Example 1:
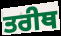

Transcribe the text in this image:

ਤਰੀਥ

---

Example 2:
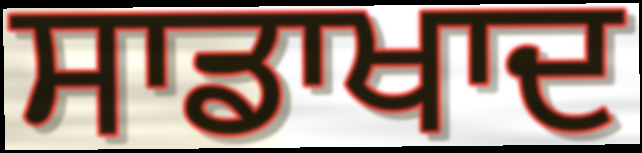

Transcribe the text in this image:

ਸਾਡਾਖਾਦ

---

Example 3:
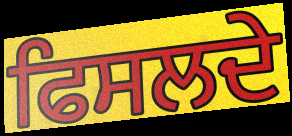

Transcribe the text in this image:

ਫਿਸਲਦੇ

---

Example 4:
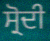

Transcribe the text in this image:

ਸ੍ਰੋਦੀ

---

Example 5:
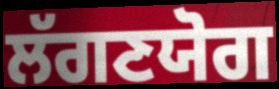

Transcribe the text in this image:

ਲੱਗਣਯੋਗ